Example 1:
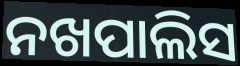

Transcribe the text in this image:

ନଖପାଲିସ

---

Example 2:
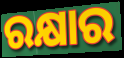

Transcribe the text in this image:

ରକ୍ଷାର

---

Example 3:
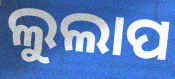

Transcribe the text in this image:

ଲୁଲାପ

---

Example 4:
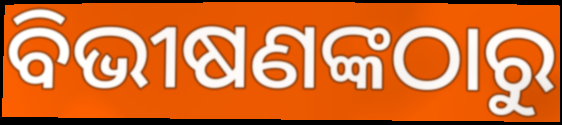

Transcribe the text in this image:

ବିଭୀଷଣଙ୍କଠାରୁ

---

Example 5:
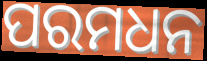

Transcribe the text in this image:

ପରମଧନ